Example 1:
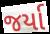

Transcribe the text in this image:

જર્યા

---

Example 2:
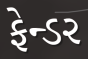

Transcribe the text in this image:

ફેન્ડર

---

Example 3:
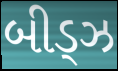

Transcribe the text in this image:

બીડ્ઝ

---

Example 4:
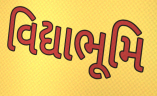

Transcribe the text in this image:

વિદ્યાભૂમિ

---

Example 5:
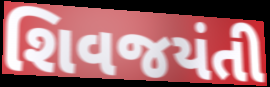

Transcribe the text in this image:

શિવજયંતી